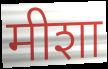
मीशा